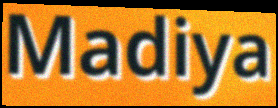
Madiya